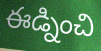
ఈడ్నించి